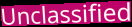
Unclassified